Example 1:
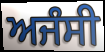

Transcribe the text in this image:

ਅਜੰਸੀ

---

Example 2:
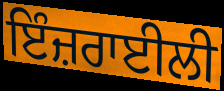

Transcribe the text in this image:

ਇੰਜ਼ਰਾਈਲੀ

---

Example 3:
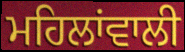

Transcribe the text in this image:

ਮਹਿਲਾਂਵਾਲੀ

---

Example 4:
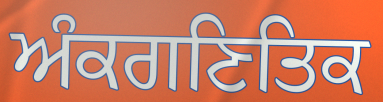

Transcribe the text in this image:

ਅੰਕਗਣਿਤਿਕ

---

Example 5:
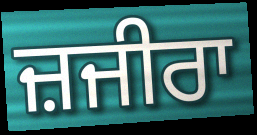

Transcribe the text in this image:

ਜ਼ਜੀਰਾ